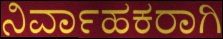
ನಿರ್ವಾಹಕರಾಗಿ